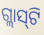
ଗ୍ଲାସ୍‍ଟି